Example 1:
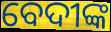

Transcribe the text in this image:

ବେଦୀଙ୍କ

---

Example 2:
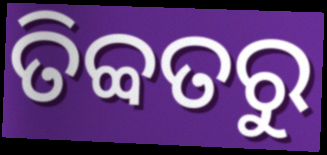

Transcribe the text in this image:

ତିବ୍ବତରୁ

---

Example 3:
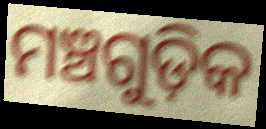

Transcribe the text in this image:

ମଞ୍ଚଗୁଡ଼ିକ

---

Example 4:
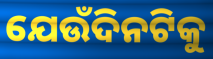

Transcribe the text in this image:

ଯେଉଁଦିନଟିକୁ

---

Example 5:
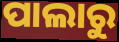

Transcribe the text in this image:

ପାଲାରୁ